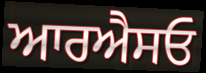
ਆਰਐਸਓ